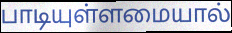
பாடியுள்ளமையால்